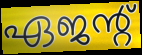
ഏജന്റ്